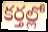
కర్తల్లో